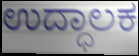
ಉದ್ಧಾಲಕ